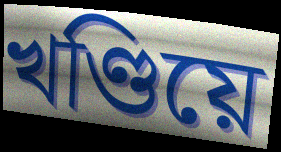
খণ্ডিয়ে